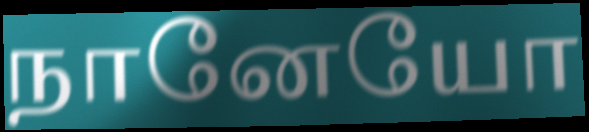
நானேயோ